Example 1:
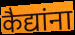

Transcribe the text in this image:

कैद्यांना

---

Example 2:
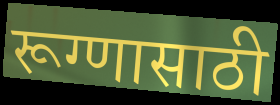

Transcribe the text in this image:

रूग्णासाठी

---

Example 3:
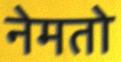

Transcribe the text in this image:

नेमतो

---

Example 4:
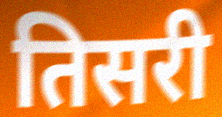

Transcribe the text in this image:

तिसरी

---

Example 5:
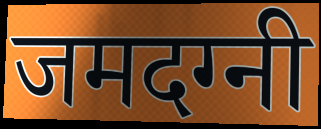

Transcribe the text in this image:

जमदग्नी